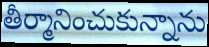
తీర్మానించుకున్నాను